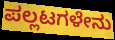
ಪಲ್ಲಟಗಳೇನು